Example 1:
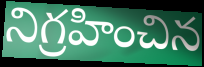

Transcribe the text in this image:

నిగ్రహించిన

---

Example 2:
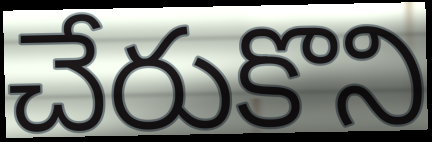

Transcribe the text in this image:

చేరుకొని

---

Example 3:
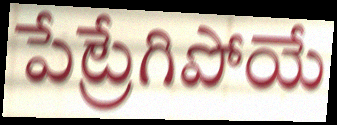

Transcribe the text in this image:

పేట్రేగిపోయే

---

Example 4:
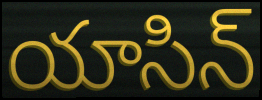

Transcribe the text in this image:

యాసిన్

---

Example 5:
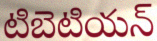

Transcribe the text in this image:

టిబెటియన్